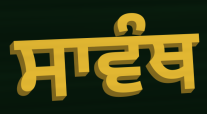
ਸਾਵੰਥ